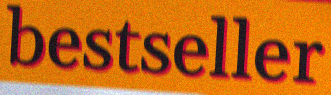
bestseller